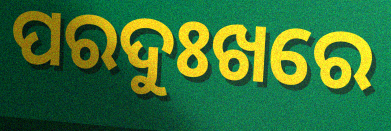
ପରଦୁଃଖରେ